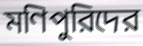
মণিপুরিদের